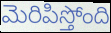
మెరిపిస్తోంది